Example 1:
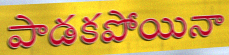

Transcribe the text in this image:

పాడకపోయినా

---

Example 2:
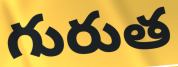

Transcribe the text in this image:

గురుత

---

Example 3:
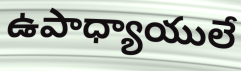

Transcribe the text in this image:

ఉపాధ్యాయులే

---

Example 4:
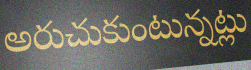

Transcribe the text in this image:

అరుచుకుంటున్నట్లు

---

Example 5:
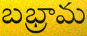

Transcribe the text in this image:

బభ్రామ